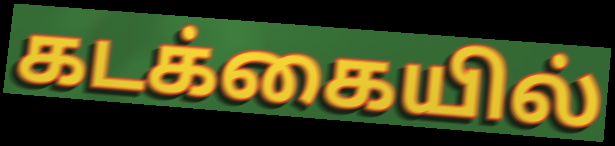
கடக்கையில்